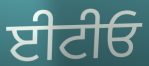
ਈਟੀਓ